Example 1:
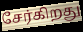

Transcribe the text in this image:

சேர்கிறது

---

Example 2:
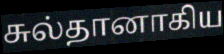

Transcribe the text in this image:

சுல்தானாகிய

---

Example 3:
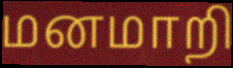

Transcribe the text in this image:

மனமாறி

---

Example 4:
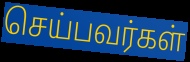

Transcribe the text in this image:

செய்பவர்கள்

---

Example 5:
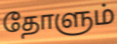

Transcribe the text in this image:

தோளும்